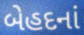
બેહદનાં